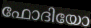
ഫോദിയോ